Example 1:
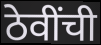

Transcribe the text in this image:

ठेवींची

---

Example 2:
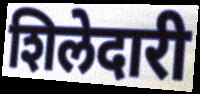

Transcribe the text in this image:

शिलेदारी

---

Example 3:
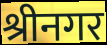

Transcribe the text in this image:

श्रीनगर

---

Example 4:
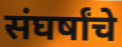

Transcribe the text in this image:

संघर्षांचे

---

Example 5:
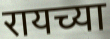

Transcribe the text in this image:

रायच्या